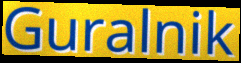
Guralnik